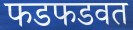
फडफडवत